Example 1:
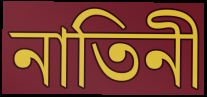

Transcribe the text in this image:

নাতিনী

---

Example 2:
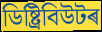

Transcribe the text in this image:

ডিষ্ট্ৰিবিউটৰ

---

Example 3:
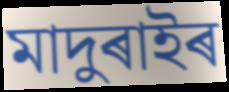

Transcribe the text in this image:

মাদুৰাইৰ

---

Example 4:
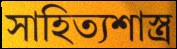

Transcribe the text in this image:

সাহিত্য়শাস্ত্ৰ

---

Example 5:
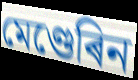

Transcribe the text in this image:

মেণ্ডেৰিন